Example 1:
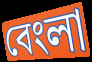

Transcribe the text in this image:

বেংলা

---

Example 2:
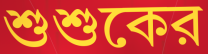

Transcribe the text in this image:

শুশুকের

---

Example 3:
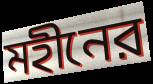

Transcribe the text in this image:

মহীনের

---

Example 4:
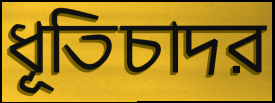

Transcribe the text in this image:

ধূতিচাদর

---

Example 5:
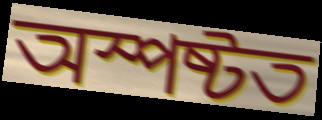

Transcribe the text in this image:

অস্পষ্টত